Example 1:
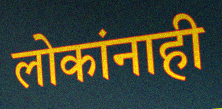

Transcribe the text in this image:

लोकांनाही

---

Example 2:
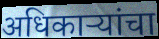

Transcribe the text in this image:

अधिकाऱ्यांचा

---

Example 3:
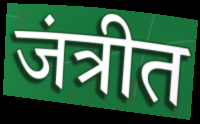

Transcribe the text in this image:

जंत्रीत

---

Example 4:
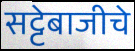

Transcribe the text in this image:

सट्टेबाजीचे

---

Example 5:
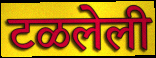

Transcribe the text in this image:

टळलेली